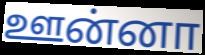
ஊன்னா